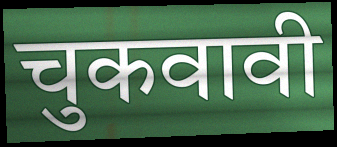
चुकवावी